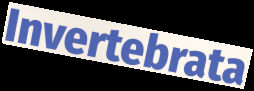
Invertebrata